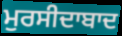
ਮੁਰਸੀਦਾਬਾਦ